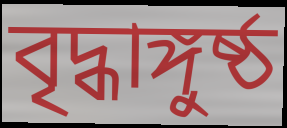
বৃদ্ধাঙ্গুষ্ঠ